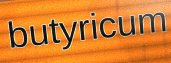
butyricum